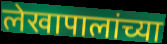
लेखापालांच्या